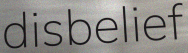
disbelief